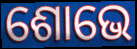
ଶୋଭେ